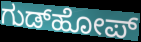
ಗುಡ್‌ಹೋಪ್